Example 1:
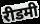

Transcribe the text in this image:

रीडमी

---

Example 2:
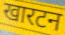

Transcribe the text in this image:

खारटन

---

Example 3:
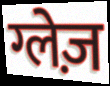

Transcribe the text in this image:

ग्लेज़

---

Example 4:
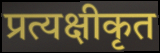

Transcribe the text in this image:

प्रत्यक्षीकृत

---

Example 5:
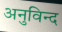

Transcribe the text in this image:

अनुविन्द